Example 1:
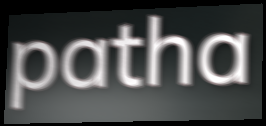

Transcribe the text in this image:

patha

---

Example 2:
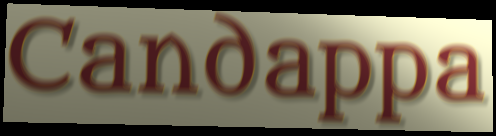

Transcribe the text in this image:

Candappa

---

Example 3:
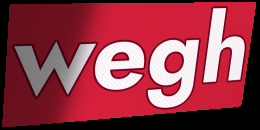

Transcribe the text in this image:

wegh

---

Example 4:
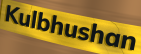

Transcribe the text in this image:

Kulbhushan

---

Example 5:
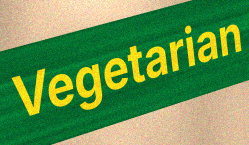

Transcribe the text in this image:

Vegetarian